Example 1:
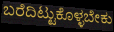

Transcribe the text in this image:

ಬರೆದಿಟ್ಟುಕೊಳ್ಳಬೇಕು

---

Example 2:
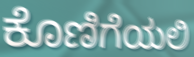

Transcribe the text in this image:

ಕೊಣಿಗೆಯಲಿ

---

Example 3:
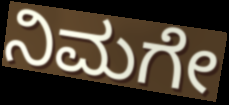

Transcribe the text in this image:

ನಿಮಗೇ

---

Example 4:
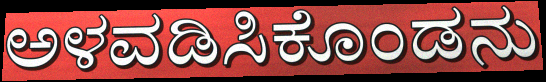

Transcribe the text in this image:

ಅಳವಡಿಸಿಕೊಂಡನು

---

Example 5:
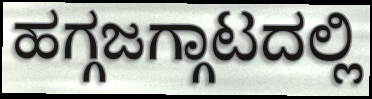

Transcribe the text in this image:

ಹಗ್ಗಜಗ್ಗಾಟದಲ್ಲಿ